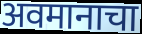
अवमानाचा